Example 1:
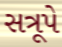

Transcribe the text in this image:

સત્રૂપે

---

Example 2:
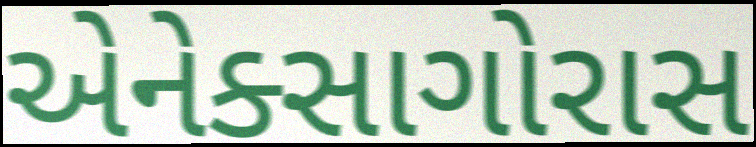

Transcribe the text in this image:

એનેક્સાગોરાસ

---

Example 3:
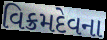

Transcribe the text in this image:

વિક્રમદેવના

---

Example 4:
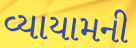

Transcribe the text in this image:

વ્યાયામની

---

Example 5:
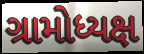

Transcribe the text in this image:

ગ્રામોધ્યક્ષ